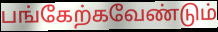
பங்கேற்கவேண்டும்